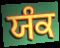
ਯੰਕ